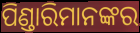
ପିଣ୍ଡାରିମାନଙ୍କର